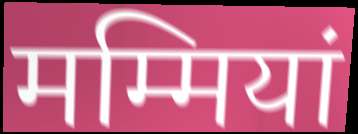
मम्मियां